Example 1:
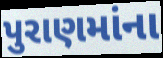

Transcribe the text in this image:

પુરાણમાંના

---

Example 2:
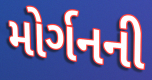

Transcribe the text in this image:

મોર્ગનની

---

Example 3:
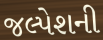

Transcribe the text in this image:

જલ્પેશની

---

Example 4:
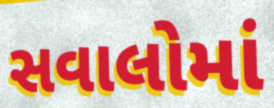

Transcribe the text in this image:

સવાલોમાં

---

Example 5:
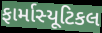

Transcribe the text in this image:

ફાર્માસ્યૂટિકલ